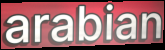
arabian